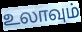
உலாவும்